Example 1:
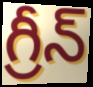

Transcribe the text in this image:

గ్రీన్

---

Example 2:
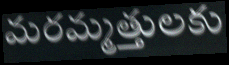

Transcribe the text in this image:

మరమ్మత్తులకు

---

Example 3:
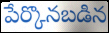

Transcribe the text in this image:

పేర్కొనబడిన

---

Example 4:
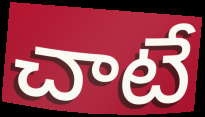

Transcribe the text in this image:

చాటే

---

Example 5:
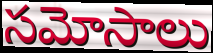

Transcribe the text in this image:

సమోసాలు